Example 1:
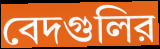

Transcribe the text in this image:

বেদগুলির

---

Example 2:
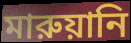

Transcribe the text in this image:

মারুয়ানি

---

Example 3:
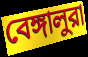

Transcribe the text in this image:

বেঙ্গালুরা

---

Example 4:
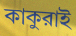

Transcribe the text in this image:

কাকুরাই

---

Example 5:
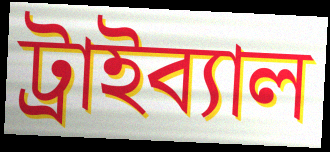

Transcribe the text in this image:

ট্রাইব্যাল